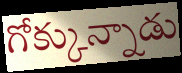
గోక్కున్నాడు